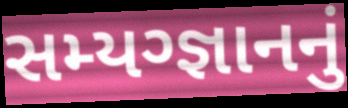
સમ્યગ્જ્ઞાનનું